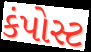
કંપોસ્ટ